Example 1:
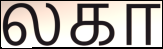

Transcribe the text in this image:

லகா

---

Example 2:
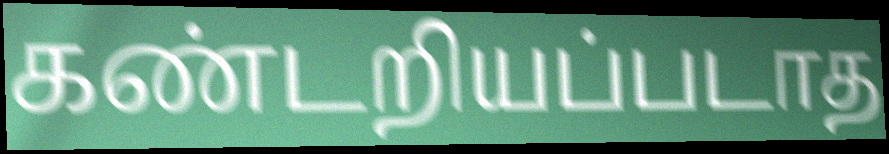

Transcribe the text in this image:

கண்டறியப்படாத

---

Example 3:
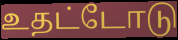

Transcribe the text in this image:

உதட்டோடு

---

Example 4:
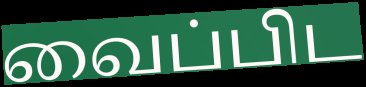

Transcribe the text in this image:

வைப்பிட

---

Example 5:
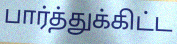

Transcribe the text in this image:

பார்த்துக்கிட்ட